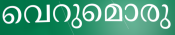
വെറുമൊരു